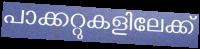
പാക്കറ്റുകളിലേക്ക്